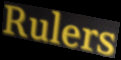
Rulers